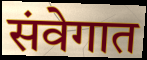
संवेगात